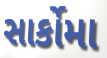
સાર્કોમા